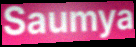
Saumya